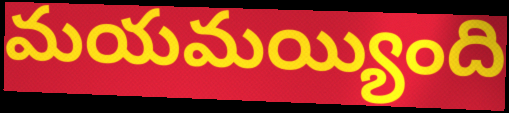
మయమయ్యింది